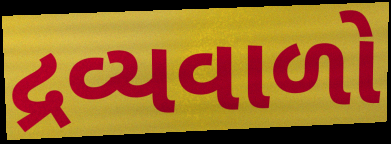
દ્રવ્યવાળો